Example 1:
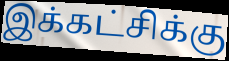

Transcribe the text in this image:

இக்கட்சிக்கு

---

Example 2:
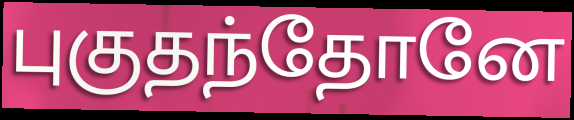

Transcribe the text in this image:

புகுதந்தோனே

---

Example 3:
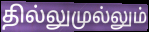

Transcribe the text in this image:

தில்லுமுல்லும்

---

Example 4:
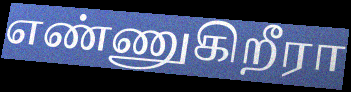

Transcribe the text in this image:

எண்ணுகிறீரா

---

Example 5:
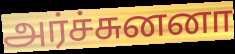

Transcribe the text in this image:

அர்ச்சுனனா